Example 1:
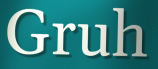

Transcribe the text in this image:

Gruh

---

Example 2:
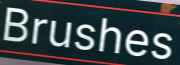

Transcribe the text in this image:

Brushes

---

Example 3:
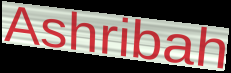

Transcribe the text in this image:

Ashribah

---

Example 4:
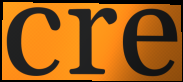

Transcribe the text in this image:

cre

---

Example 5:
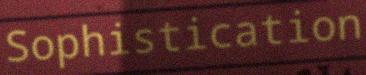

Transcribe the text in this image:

Sophistication